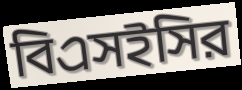
বিএসইসির